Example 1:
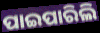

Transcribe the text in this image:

ପାଇପାରିଲି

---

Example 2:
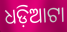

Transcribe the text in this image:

ଧଡ଼ିଆଟା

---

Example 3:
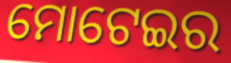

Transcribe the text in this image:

ମୋଟେଇର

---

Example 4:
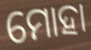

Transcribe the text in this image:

ମୋହା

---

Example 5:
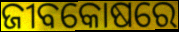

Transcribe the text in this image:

ଜୀବକୋଷରେ